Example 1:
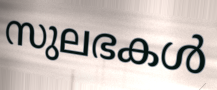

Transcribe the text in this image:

സുലഭകൾ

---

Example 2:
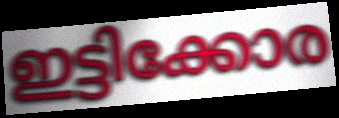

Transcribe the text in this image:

ഇട്ടിക്കോര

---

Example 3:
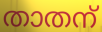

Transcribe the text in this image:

താതന്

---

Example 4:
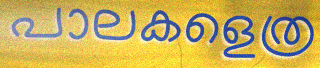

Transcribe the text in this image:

പാലകളെത്ര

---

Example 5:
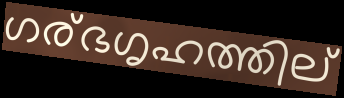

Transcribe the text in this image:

ഗര്ഭഗൃഹത്തില്